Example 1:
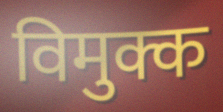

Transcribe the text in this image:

विमुक्क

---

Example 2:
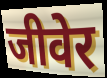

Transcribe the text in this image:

जीवेर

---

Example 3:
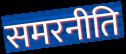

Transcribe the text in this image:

समरनीति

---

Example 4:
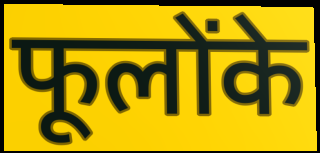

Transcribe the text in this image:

फूलोंके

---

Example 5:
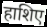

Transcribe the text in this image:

हाशिए